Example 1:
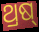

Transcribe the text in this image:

ଥ୍ରଷ୍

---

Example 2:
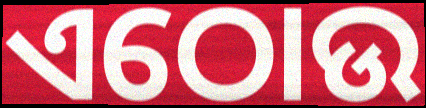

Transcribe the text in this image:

ଏଠୋଉ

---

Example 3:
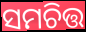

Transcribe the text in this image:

ସମଚିତ୍ତ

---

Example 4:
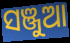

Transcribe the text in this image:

ସଞ୍ଜୁଆ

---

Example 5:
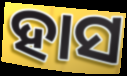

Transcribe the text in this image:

ହାସ